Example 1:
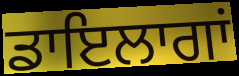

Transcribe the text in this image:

ਡਾਇਲਾਗਾਂ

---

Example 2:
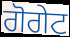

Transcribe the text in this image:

ਗੋਗੇਟ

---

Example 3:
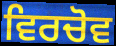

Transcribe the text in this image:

ਵਿਰਚੋਵ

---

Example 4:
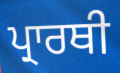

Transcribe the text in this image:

ਪ੍ਰਾਰਥੀ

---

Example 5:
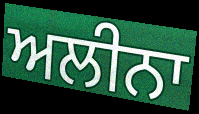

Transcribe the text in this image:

ਅਲੀਨਾ